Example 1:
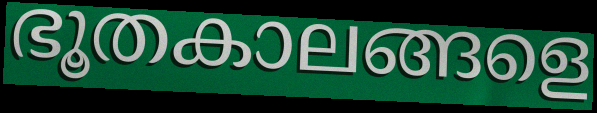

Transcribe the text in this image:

ഭൂതകാലങ്ങളെ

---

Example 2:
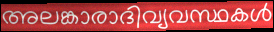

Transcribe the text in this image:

അലങ്കാരാദിവ്യവസ്ഥകൾ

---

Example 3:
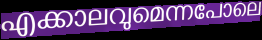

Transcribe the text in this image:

എക്കാലവുമെന്നപോലെ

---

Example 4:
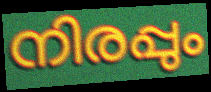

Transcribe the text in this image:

നിരപ്പും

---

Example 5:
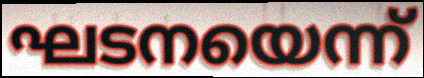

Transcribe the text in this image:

ഘടനയെന്ന്